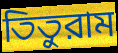
তিতুরাম